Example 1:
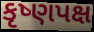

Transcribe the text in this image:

કૃષ્ણપક્ષ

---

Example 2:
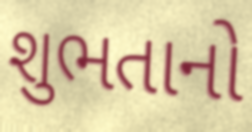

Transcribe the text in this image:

શુભતાનો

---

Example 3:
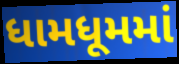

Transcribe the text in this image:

ધામધૂમમાં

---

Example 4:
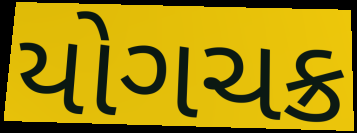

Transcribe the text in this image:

યોગચક્ર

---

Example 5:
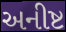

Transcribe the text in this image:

અનીષ્ટ